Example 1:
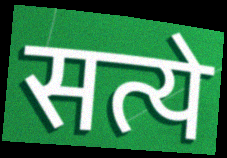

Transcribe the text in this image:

सत्ये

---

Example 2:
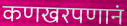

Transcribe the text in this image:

कणखरपणानं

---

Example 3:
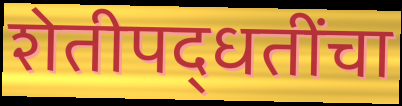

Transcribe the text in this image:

शेतीपद्धतींचा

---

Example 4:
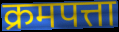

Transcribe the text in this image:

क्रमपत्ता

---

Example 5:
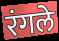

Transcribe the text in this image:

रंगले